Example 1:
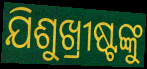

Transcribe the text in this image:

ଯିଶୁଖ୍ରୀଷ୍ଟଙ୍କୁ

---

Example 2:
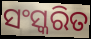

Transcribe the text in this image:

ସଂସ୍କରିତ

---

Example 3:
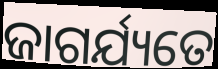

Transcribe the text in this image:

ଜାଗର୍ଯ୍ୟତେ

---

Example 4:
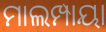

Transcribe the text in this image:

ମାଲମ୍ପାୟା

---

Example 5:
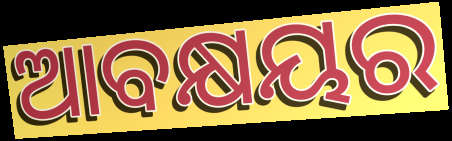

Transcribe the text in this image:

ଆବକ୍ଷୟର